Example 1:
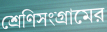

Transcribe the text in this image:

শ্রেণিসংগ্রামের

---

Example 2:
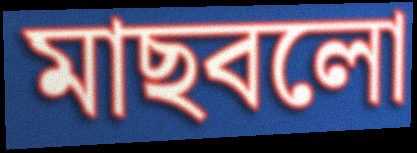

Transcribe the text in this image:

মাছবলো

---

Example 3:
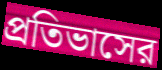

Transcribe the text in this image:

প্রতিভাসের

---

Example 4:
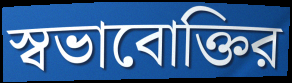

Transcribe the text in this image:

স্বভাবোক্তির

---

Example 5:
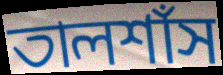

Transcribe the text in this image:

তালশাঁস